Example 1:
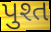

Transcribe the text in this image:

પુશ્ત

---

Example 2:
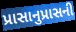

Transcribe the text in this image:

પ્રાસાનુપ્રાસની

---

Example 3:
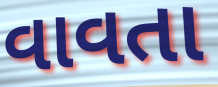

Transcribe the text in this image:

વાવતા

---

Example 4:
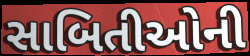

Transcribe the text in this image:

સાબિતીઓની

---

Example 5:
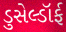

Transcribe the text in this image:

ડુસેલ્ડૉર્ફ